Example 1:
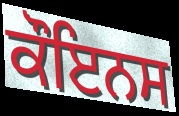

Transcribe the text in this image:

ਕੌਇਨਸ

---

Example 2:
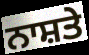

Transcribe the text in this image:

ਨਾਸ਼ਤੇ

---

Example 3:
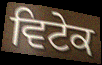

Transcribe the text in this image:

ਵਿਟੇਕ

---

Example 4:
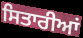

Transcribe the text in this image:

ਸਿਤਾਰੀਆਂ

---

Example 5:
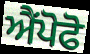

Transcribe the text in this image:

ਐਂਪੋਫੋ